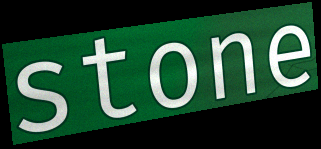
stone